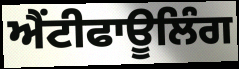
ਐਂਟੀਫਾਊਲਿੰਗ